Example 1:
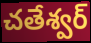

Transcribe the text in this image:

చతేశ్వర్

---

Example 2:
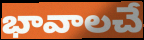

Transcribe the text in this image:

భావాలచే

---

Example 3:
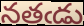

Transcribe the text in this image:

నతఁడు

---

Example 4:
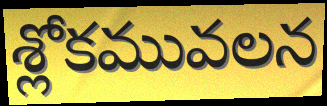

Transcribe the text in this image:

శ్లోకమువలన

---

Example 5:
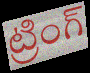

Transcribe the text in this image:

ట్రింగ్